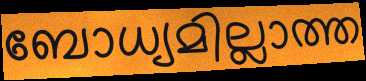
ബോധ്യമില്ലാത്ത